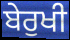
ਬੇਰੁਖੀ